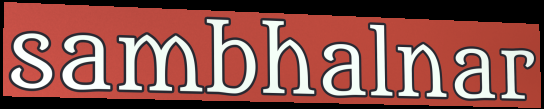
sambhalnar